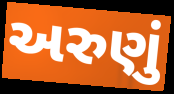
અરુણું